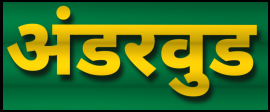
अंडरवुड